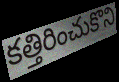
కత్తిరించుకొని